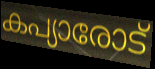
കപ്യാരോട്